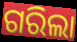
ଗରିଲା